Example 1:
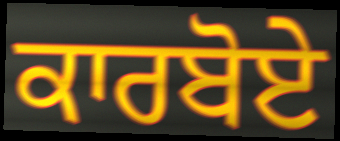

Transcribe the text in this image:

ਕਾਰਬੋਏ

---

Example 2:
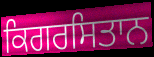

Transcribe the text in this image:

ਕਿਗਰਸਿਤਾਨ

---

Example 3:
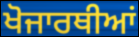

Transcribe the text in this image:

ਖੋਜਾਰਥੀਆਂ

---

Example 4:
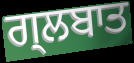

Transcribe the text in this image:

ਗ੍ਲਬਾਤ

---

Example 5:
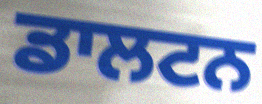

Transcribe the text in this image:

ਡਾਲਟਨ